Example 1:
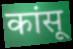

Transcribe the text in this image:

कांसू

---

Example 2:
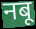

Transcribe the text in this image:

नबू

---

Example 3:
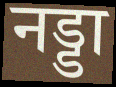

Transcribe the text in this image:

नड्डा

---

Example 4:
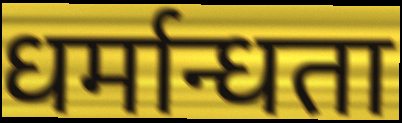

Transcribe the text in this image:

धर्मान्धता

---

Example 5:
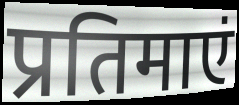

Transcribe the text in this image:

प्रतिमाएं